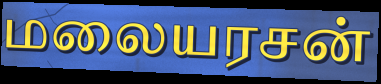
மலையரசன்